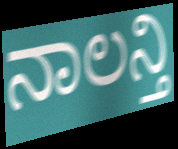
ನಾಲನ್ತಿ